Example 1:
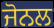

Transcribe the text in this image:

ਜੋਨਲ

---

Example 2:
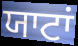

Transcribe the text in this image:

ਯਾਟਾਂ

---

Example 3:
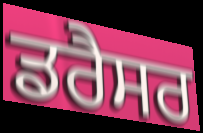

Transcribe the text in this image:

ਡਰੈਸਰ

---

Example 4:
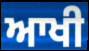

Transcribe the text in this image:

ਆਖੀ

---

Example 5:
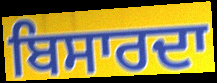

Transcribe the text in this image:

ਬਿਸਾਰਦਾ